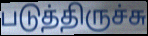
படுத்திருச்சு